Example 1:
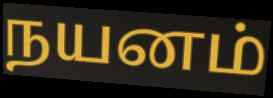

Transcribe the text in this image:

நயனம்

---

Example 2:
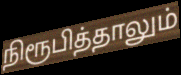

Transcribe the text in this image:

நிரூபித்தாலும்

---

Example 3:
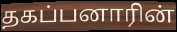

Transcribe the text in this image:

தகப்பனாரின்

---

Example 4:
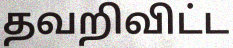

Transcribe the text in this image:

தவறிவிட்ட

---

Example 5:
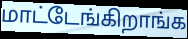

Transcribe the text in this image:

மாட்டேங்கிறாங்க